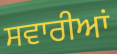
ਸਵਾਰੀਆਂ